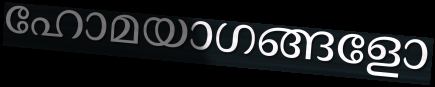
ഹോമയാഗങ്ങളോ